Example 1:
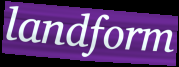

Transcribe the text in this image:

landform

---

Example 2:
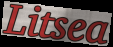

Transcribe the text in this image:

Litsea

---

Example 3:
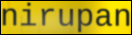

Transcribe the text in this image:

nirupan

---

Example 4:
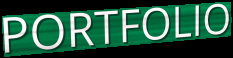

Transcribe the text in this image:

PORTFOLIO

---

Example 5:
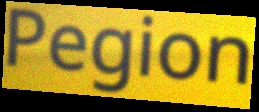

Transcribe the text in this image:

Pegion